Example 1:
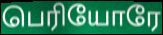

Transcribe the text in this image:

பெரியோரே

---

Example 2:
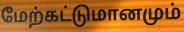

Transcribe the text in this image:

மேற்கட்டுமானமும்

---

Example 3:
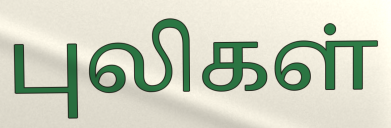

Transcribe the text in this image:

புலிகள்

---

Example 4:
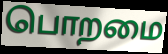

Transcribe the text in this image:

பொறமை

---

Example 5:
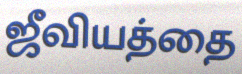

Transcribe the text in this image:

ஜீவியத்தை